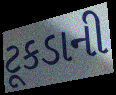
ટૂકડાની